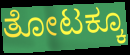
ತೋಟಕ್ಕೂ